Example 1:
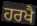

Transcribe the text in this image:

ਹਰਖੈ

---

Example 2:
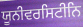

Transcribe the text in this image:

ਯੂਨੀਵਰਸਿਟੀਨਿ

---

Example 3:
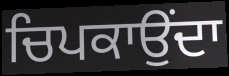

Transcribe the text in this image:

ਚਿਪਕਾਉਂਦਾ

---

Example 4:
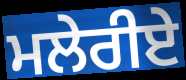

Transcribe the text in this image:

ਮਲੇਰੀਏ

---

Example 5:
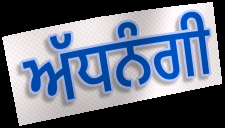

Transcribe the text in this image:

ਅੱਧਨੰਗੀ